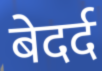
बेदर्द